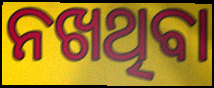
ନଖଥିବା